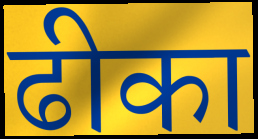
ढीका